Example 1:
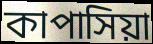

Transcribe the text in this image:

কাপাসিয়া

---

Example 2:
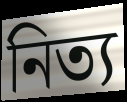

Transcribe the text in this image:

নিত্য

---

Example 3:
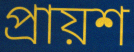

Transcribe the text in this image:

প্রায়শ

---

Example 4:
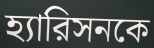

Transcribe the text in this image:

হ্যারিসনকে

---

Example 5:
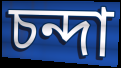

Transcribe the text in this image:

চন্দা